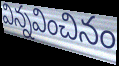
విన్నవించినం